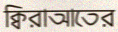
ক্বিরাআতের